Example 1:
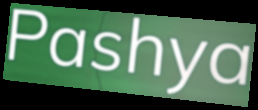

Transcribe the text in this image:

Pashya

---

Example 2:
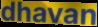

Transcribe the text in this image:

dhavan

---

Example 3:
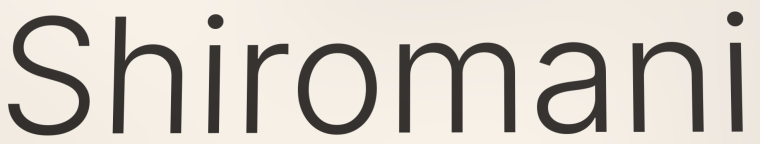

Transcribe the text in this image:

Shiromani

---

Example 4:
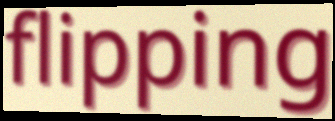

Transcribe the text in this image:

flipping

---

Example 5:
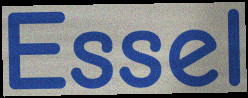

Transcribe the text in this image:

Essel